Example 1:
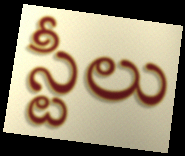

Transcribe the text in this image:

స్టీలు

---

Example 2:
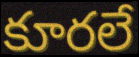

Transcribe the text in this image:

కూరలే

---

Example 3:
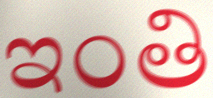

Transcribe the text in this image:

ఇంతి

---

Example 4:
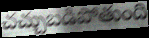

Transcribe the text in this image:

చచ్చుబడిపోతుంది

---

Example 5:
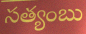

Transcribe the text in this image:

సత్యంబు